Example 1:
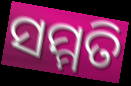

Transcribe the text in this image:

ସମ୍ମତି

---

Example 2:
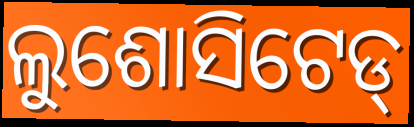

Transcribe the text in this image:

ଲୁଶୋସିଟେଡ୍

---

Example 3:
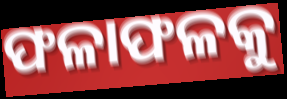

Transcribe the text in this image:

ଫଳାଫଳକୁ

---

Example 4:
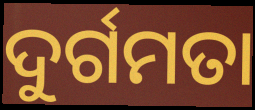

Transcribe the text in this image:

ଦୁର୍ଗମତା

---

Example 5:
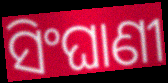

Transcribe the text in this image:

ସିଂଘାଣୀ